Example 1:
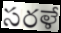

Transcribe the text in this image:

సరళే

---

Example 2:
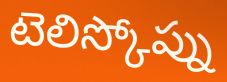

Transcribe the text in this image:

టెలిస్కోప్ను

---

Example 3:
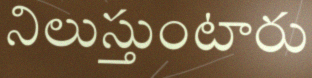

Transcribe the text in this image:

నిలుస్తుంటారు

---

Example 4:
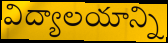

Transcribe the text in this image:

విద్యాలయాన్ని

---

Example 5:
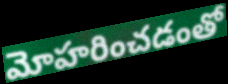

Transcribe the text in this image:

మోహరించడంతో